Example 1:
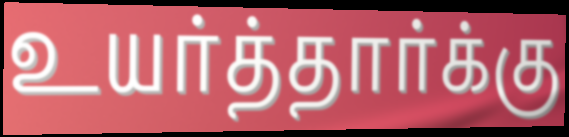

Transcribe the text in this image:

உயர்த்தார்க்கு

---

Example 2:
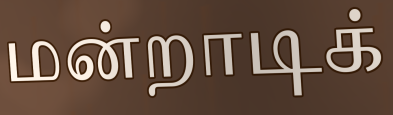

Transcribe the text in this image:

மன்றாடிக்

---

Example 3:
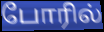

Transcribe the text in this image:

போரில்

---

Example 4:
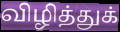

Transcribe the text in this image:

விழித்துக்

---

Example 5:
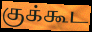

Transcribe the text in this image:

குக்கூட